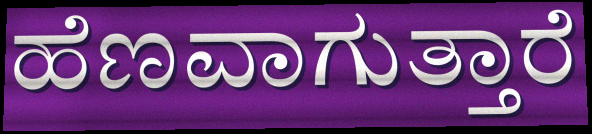
ಹೆಣವಾಗುತ್ತಾರೆ